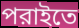
পরাইতে